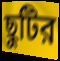
ছুটির